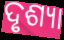
ଦୃଶ୍ୟା